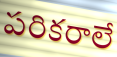
పరికరాలే